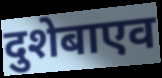
दुशेबाएव